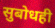
सुबोधही